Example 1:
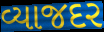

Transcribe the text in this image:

વ્યાજદર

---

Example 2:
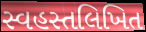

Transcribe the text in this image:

સ્વહસ્તલિખિત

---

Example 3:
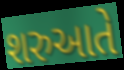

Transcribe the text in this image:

શરુઆતે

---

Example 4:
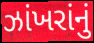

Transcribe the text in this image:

ઝાંખરાંનું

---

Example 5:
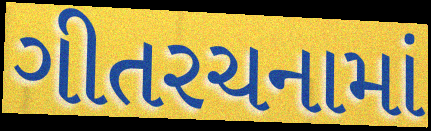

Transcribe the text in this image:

ગીતરચનામાં